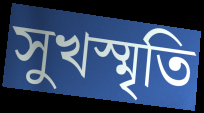
সুখস্মৃতি